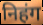
निहंग